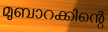
മുബാറക്കിന്റെ